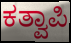
ಕತ್ವಾಪಿ